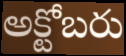
అక్టోబరు